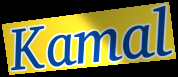
Kamal